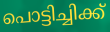
പൊട്ടിച്ചിക്ക്